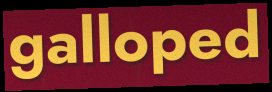
galloped